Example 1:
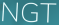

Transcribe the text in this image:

NGT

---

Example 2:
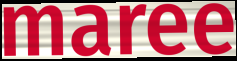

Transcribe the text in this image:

maree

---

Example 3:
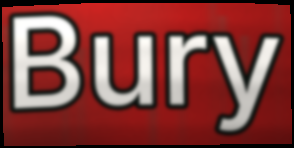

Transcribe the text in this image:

Bury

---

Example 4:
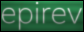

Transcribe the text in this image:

epirev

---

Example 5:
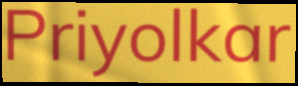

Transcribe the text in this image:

Priyolkar